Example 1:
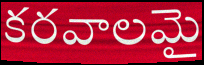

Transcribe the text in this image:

కరవాలమై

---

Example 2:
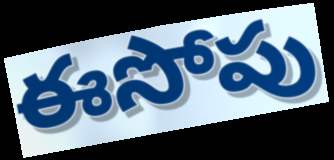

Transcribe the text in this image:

ఈసోపు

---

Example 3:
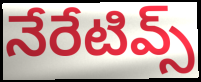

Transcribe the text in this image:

నేరేటివ్స్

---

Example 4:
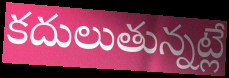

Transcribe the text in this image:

కదులుతున్నట్లే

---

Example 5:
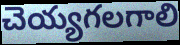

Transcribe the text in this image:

చెయ్యగలగాలి